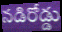
నడిరోడ్డు